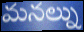
మనల్ను